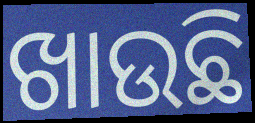
ଖାଉଛି